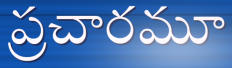
ప్రచారమూ